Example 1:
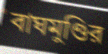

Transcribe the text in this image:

বাঘমুণ্ডির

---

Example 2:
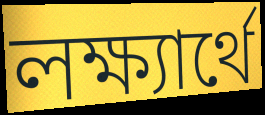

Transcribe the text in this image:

লক্ষ্যার্থে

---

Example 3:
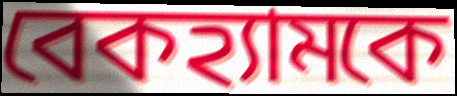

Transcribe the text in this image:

বেকহ্যামকে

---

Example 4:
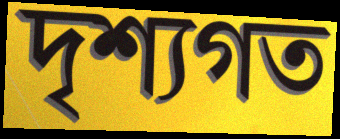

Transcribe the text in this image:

দৃশ্যগত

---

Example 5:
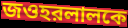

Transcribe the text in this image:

জওহরলালকে